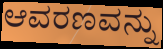
ಆವರಣವನ್ನು